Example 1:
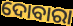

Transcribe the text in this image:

ଦୋବାରା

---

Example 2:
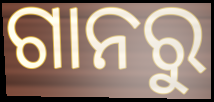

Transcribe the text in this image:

ଗାନରୁ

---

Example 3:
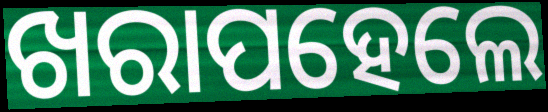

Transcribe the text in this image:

ଖରାପହେଲେ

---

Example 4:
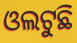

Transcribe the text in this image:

ଓଲଟୁଛି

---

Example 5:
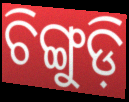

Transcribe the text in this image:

ଚିଙ୍ଗୁଡ଼ି